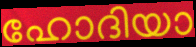
ഹോദിയാ